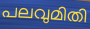
പലവുമിതി